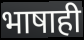
भाषाही